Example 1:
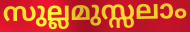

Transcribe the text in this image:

സുല്ലമുസ്സലാം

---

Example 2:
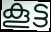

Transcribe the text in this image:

കൂട്ട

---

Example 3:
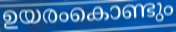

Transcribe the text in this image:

ഉയരംകൊണ്ടും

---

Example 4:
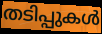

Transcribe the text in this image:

തടിപ്പുകൾ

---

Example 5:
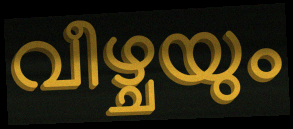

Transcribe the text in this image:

വീഴ്ചയും